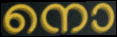
നൊ